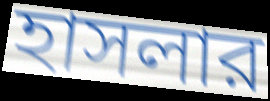
হাসলার